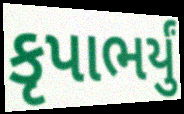
કૃપાભર્યું